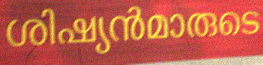
ശിഷ്യൻമാരുടെ